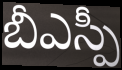
బీఎస్పీ